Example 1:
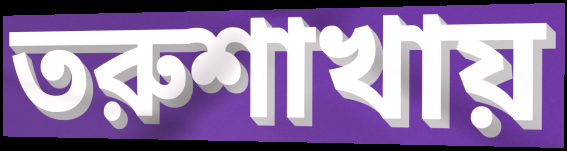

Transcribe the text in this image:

তরুশাখায়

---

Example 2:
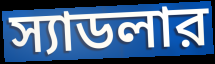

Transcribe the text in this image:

স্যাডলার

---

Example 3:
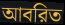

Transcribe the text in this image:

আবরিত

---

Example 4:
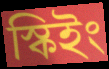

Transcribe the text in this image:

স্কিইং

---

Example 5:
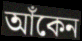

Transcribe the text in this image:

আঁকেন